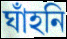
ঘাঁহনি